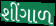
શીંગાળ